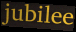
jubilee